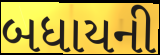
બધાયની